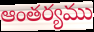
ఆంతర్యము